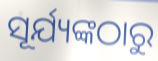
ସୂର୍ଯ୍ୟଙ୍କଠାରୁ